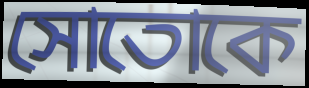
সোতোকে